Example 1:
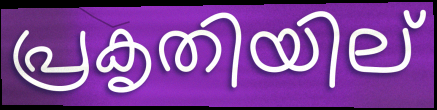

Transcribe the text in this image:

പ്രകൃതിയില്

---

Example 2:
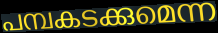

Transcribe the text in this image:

പമ്പകടക്കുമെന്ന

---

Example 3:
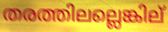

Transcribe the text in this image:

തരത്തിലല്ലെങ്കില്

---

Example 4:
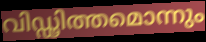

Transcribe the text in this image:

വിഡ്ഢിത്തമൊന്നും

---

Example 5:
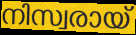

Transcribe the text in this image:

നിസ്വരായ്